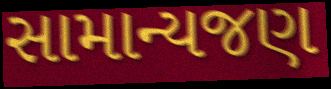
સામાન્યજણ